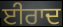
ਈਰਾਦ